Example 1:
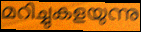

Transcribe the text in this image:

മറിച്ചുകളയുന്നു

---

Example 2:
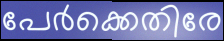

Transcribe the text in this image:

പേർക്കെതിരേ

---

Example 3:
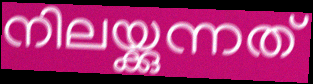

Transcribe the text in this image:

നിലയ്ക്കുന്നത്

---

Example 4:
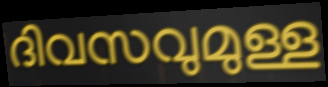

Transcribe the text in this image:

ദിവസവുമുള്ള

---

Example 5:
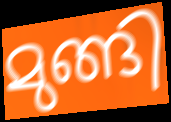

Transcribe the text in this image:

മുങ്ങി